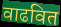
वाढवित